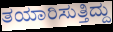
ತಯಾರಿಸುತ್ತಿದ್ದು